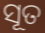
ସୂତ